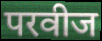
परवीज